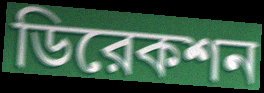
ডিরেকশন